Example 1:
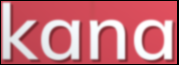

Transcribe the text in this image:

kana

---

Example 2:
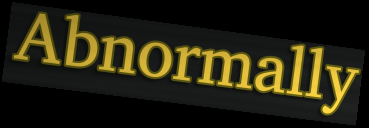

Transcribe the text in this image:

Abnormally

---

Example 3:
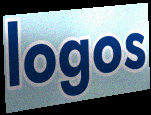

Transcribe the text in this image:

logos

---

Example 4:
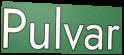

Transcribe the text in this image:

Pulvar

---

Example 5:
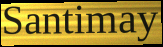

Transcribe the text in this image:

Santimay